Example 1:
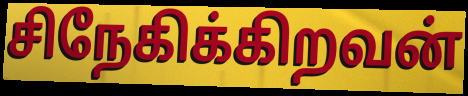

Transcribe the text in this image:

சிநேகிக்கிறவன்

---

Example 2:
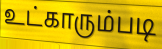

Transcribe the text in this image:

உட்காரும்படி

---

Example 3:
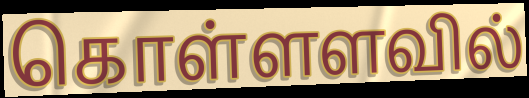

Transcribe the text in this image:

கொள்ளளவில்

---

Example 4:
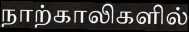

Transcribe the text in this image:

நாற்காலிகளில்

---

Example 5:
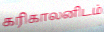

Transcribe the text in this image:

கரிகாலனிடம்